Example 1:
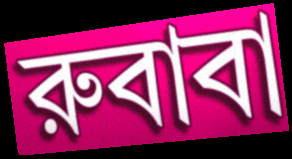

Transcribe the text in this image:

রুবাবা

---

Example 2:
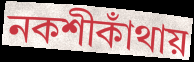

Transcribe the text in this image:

নকশীকাঁথায়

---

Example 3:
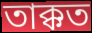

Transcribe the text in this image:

তাক্কত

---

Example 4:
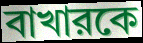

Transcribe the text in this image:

বাখারকে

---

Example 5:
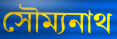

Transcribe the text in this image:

সৌম্যনাথ